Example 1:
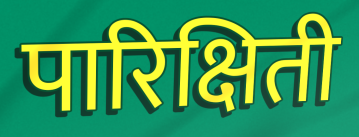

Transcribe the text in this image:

पारिक्षिती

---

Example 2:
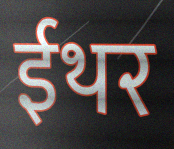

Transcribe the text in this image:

ईथर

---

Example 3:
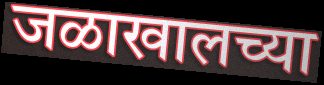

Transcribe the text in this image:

जळाखालच्या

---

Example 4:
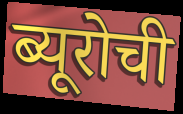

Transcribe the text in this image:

ब्यूरोची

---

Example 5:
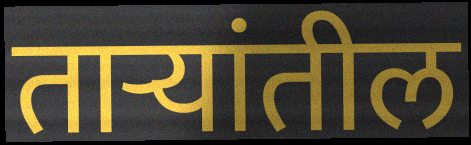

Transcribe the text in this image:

ताऱ्यांतील